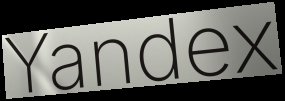
Yandex